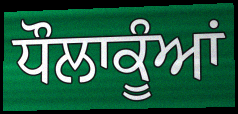
ਧੌਲਾਕੂੰਆਂ